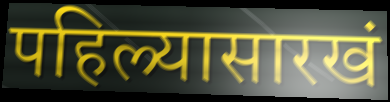
पहिल्यासारखं